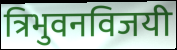
त्रिभुवनविजयी